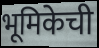
भूमिकेची